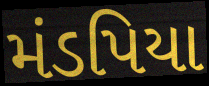
મંડપિયા